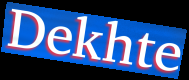
Dekhte